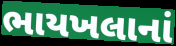
ભાયખલાનાં